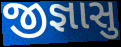
જીજ્ઞાસુ